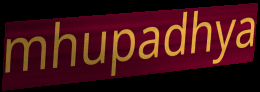
mhupadhya